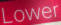
Lower